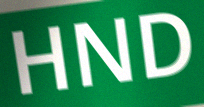
HND